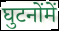
घुटनोंमें